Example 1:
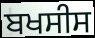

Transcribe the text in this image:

ਬਖਸੀਸ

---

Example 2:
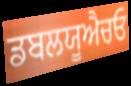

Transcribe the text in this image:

ਡਬਲਯੂਐਚਓ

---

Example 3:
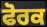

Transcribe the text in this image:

ਫੋਰਕ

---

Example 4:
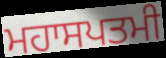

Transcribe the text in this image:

ਮਹਾਸਪਤਮੀ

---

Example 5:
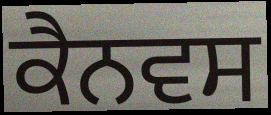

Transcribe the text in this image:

ਕੈਨਵਸ